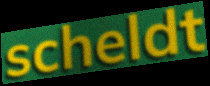
scheldt